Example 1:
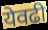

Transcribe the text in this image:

येवढी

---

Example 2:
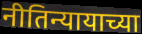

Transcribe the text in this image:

नीतिन्यायाच्या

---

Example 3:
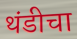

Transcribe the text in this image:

थंडीचा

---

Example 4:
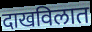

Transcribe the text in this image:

दाखविलात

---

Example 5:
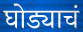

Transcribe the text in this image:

घोड्याचं